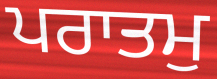
ਪਰਾਤਮੁ